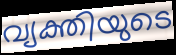
വ്യക്തിയുടെ